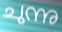
ചുന്നു